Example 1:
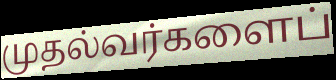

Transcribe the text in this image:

முதல்வர்களைப்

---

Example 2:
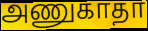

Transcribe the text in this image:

அணுகாதா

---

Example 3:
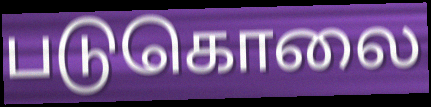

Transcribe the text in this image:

படுகொலை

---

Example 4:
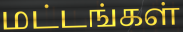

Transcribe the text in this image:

மட்டங்கள்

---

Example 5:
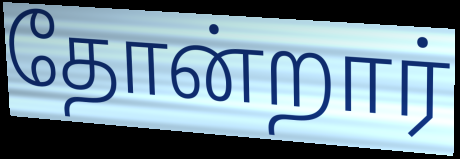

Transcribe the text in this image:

தோன்றார்